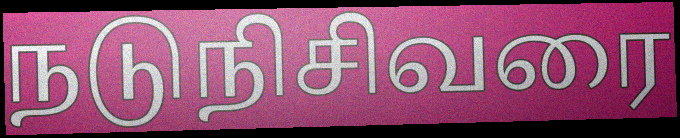
நடுநிசிவரை